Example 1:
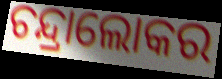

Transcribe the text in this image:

ଚନ୍ଦ୍ରାଲୋକର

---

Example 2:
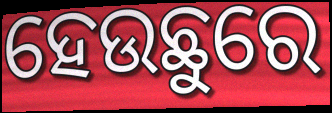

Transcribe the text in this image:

ହେଉଛୁରେ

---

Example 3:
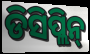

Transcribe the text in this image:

ଡିସିପ୍ଲିନ୍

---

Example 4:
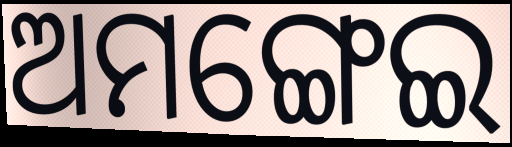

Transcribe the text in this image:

ଅମଙ୍ଗେଇ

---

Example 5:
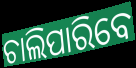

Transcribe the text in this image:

ଚାଲିପାରିବେ